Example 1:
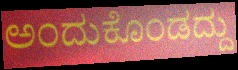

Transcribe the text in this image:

ಅಂದುಕೊಂಡದ್ದು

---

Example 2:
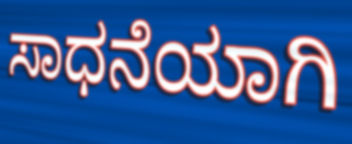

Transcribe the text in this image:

ಸಾಧನೆಯಾಗಿ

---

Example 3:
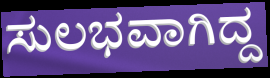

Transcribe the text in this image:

ಸುಲಭವಾಗಿದ್ದ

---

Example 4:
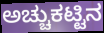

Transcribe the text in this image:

ಅಚ್ಚುಕಟ್ಟಿನ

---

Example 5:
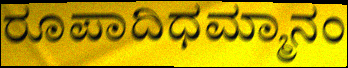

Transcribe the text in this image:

ರೂಪಾದಿಧಮ್ಮಾನಂ